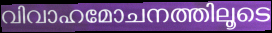
വിവാഹമോചനത്തിലൂടെ